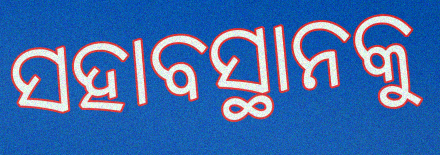
ସହାବସ୍ଥାନକୁ